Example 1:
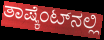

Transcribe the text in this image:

ತಾಷ್ಕೆಂಟ್‌ನಲ್ಲಿ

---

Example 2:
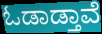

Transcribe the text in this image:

ಓಡಾಡ್ತಾವೆ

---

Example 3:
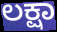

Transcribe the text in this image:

ಲಕ್ಷಾ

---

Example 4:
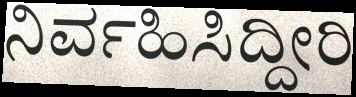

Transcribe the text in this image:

ನಿರ್ವಹಿಸಿದ್ದೀರಿ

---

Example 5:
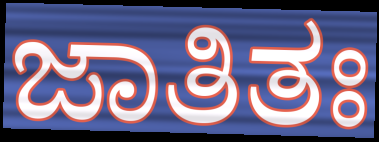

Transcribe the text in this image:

ಜಾತಿತಃ